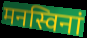
मनस्विनां